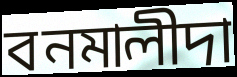
বনমালীদা